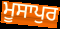
ਮੂਸਾਪੁਰ